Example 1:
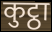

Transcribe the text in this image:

कुट्ठा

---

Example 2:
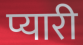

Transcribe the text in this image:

प्यारी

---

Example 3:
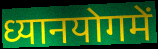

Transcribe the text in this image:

ध्यानयोगमें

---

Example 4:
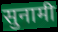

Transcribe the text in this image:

सुनामी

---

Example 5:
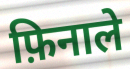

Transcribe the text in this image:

फ़िनाले